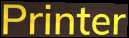
Printer